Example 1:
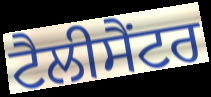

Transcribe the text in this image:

ਟੈਲੀਸੈਂਟਰ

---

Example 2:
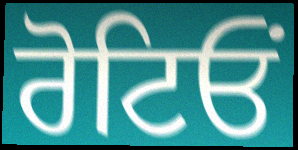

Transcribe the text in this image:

ਰੋਟਿਓਂ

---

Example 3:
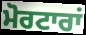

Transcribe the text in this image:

ਮੋਰਟਾਰਾਂ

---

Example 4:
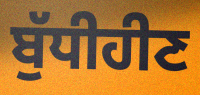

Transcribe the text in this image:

ਬੁੱਧੀਹੀਣ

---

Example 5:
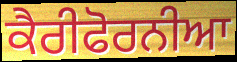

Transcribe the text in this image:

ਕੈਰੀਫੋਰਨੀਆ